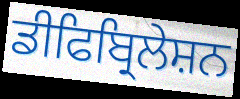
ਡੀਫਿਬ੍ਰਿਲੇਸ਼ਨ